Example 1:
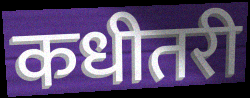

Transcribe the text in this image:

कधीतरी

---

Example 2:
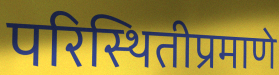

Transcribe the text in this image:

परिस्थितीप्रमाणे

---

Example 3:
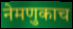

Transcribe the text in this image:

नेमणुकाच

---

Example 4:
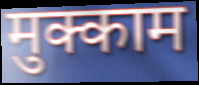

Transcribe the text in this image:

मुक्‍काम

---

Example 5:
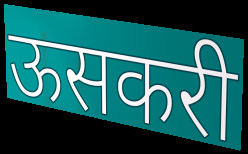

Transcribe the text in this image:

ऊसकरी